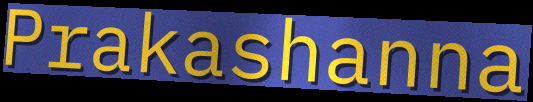
Prakashanna